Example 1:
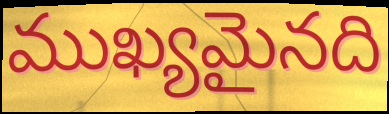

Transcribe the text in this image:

ముఖ్యమైనది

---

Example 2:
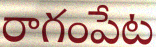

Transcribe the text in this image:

రాగంపేట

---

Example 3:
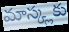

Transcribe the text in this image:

మాస్క్లకు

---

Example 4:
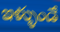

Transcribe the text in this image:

ఇళ్ళుండే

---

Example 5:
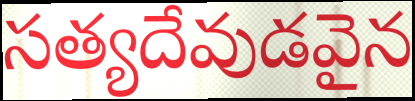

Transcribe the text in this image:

సత్యదేవుడవైన